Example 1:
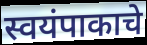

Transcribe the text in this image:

स्वयंपाकाचे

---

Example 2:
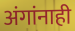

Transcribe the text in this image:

अंगांनाही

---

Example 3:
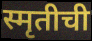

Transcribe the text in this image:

स्मृतीची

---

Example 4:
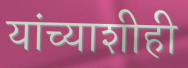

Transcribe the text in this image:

यांच्याशीही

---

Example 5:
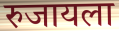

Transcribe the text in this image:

रुजायला